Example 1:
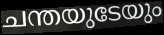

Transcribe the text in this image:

ചന്തയുടേയും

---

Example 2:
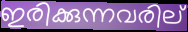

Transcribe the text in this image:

ഇരിക്കുന്നവരില്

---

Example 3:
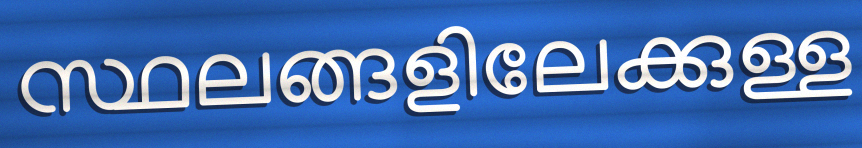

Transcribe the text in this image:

സ്ഥലങ്ങളിലേക്കുള്ള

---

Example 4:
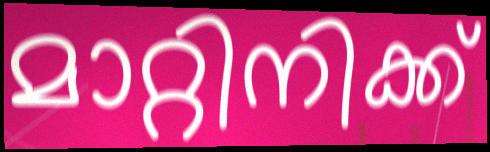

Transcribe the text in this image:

മാറ്റിനിക്ക്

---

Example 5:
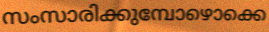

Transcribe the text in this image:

സംസാരിക്കുമ്പോഴൊക്കെ